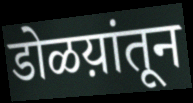
डोळय़ांतून